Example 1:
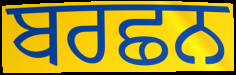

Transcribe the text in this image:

ਬਰਛਨ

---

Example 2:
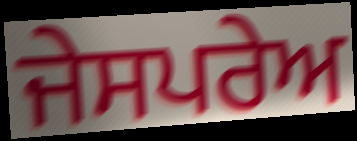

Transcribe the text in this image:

ਜੇਸਪਰੇਅ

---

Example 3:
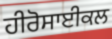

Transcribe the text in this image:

ਹੀਰੋਸਾਈਕਲ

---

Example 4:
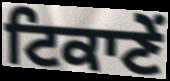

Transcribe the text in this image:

ਟਿਕਾਣੇਂ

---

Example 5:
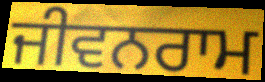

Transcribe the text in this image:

ਜੀਵਨਰਾਮ